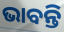
ଭାବନ୍ତି